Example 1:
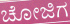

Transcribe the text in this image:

ಚೋಜಿಗ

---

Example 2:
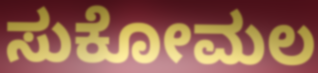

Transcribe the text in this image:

ಸುಕೋಮಲ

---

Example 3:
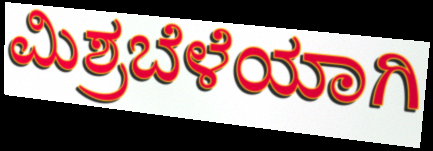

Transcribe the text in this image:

ಮಿಶ್ರಬೆಳೆಯಾಗಿ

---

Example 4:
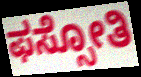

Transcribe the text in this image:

ಫಸ್ಸೋತಿ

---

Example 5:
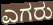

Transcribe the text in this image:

ಎಗರು